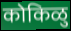
कोकिळु